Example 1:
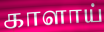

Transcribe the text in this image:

காளாய்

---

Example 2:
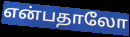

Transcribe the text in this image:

என்பதாலோ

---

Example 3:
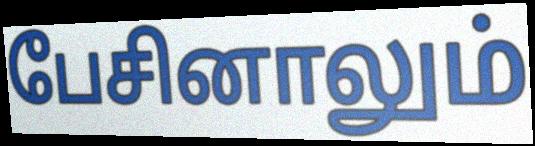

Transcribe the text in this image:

பேசினாலும்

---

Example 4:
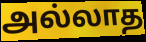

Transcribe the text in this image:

அல்லாத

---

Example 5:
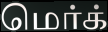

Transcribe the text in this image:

மெர்க்